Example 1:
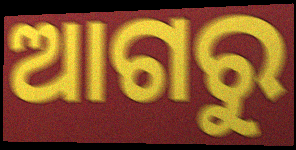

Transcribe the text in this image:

ଆଗରୁ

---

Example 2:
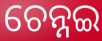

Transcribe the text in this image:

ଚେନ୍ନଇ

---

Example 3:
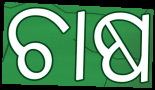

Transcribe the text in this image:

ଚାଷ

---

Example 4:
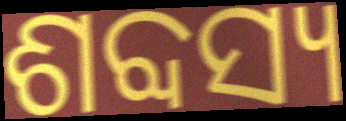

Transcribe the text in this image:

ଶବ୍ଦସ୍ଯ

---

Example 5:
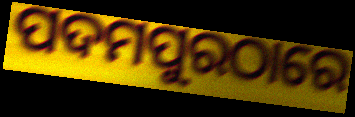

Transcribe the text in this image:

ପଦମପୁରଠାରେ